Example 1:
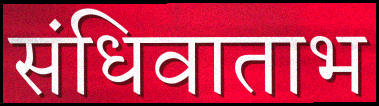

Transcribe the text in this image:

संधिवाताभ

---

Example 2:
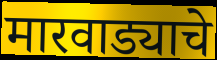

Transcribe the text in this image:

मारवाड्याचे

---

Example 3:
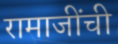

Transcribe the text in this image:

रामाजींची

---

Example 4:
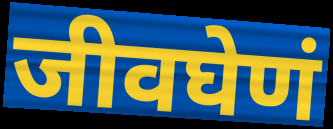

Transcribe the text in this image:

जीवघेणं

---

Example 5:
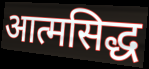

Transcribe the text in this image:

आत्मसिद्ध